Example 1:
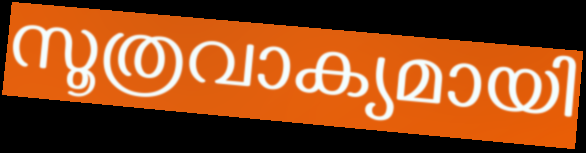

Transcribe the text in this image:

സൂത്രവാക്യമായി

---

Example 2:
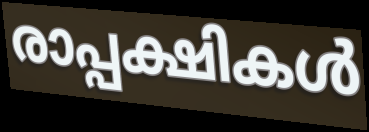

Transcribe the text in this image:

രാപ്പക്ഷികൾ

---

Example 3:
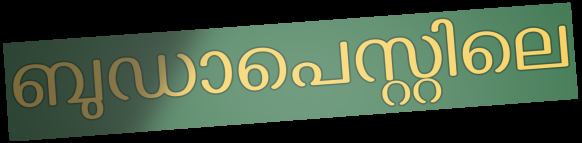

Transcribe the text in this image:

ബുഡാപെസ്റ്റിലെ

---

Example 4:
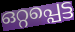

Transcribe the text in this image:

ഒറ്റപ്പെട്ട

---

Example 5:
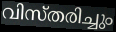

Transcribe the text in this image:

വിസ്തരിച്ചും